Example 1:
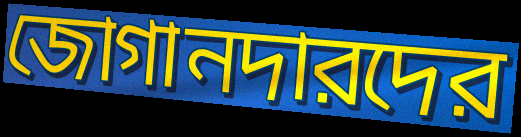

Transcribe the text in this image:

জোগানদারদের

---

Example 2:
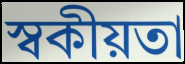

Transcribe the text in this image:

স্বকীয়তা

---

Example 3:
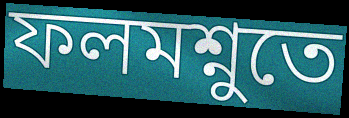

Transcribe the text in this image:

ফলমশ্নুতে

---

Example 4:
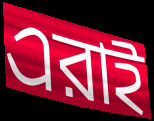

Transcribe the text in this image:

এরাই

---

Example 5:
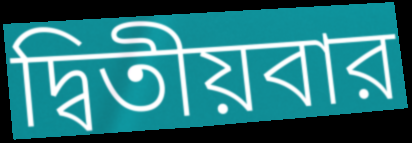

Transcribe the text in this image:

দ্বিতীয়বার